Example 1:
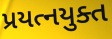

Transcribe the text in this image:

પ્રયત્નયુક્ત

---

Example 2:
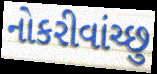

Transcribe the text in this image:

નોકરીવાંચ્છુ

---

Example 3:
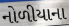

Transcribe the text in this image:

નોળીયાના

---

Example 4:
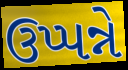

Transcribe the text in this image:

ઉપ્પન્ને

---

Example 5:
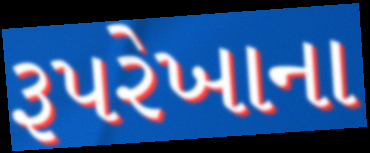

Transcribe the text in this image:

રૂપરેખાના